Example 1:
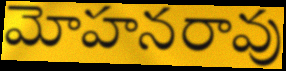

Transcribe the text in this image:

మోహనరావు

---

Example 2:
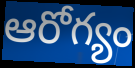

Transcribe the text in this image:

ఆరోగ్యం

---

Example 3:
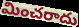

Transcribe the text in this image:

మించరాదు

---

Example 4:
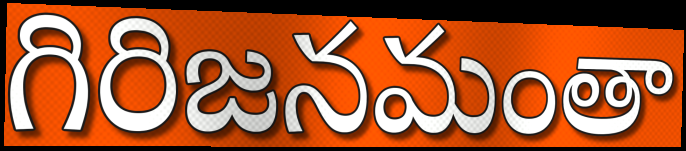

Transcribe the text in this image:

గిరిజనమంతా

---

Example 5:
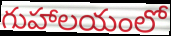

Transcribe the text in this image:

గుహాలయంలో